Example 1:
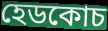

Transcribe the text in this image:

হেডকোচ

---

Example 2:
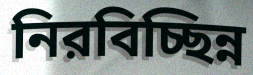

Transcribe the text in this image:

নিরবিচ্ছিন্ন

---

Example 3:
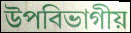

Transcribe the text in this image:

উপবিভাগীয়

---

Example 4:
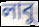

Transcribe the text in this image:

লাবু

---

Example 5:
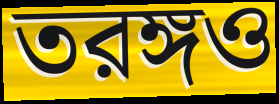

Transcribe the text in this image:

তরঙ্গও